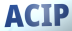
ACIP